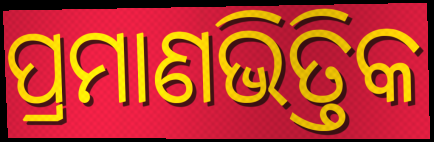
ପ୍ରମାଣଭିତ୍ତିକ